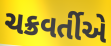
ચક્રવર્તીએ